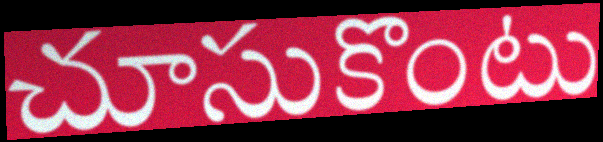
చూసుకొంటు